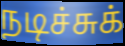
நடிச்சுக்